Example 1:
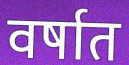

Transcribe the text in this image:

वर्षात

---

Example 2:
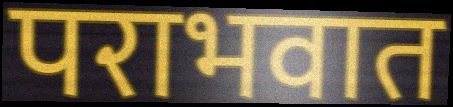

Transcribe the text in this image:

पराभवात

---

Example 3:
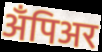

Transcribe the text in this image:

अँपिअर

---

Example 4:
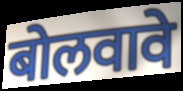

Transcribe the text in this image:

बोलवावे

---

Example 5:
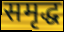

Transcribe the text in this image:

समृद्ध